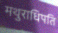
मथुराधिपति